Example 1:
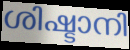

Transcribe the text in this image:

ശിഷ്ടാനി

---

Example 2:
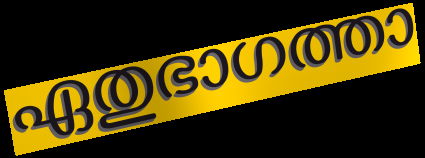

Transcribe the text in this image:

ഏതുഭാഗത്താ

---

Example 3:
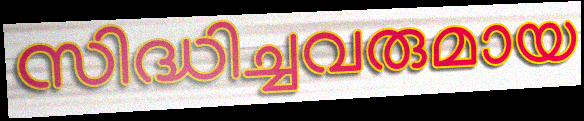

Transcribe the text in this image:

സിദ്ധിച്ചവരുമായ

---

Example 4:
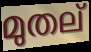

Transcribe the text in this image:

മുതല്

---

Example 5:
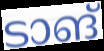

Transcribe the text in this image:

ടാങ്